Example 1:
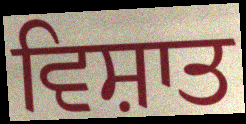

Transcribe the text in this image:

ਵਿਸ਼ਾਤ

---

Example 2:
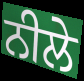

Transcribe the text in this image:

ਨੀਲੇ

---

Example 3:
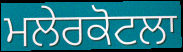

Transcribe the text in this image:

ਮਲੇਰਕੋਟਲਾ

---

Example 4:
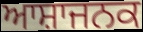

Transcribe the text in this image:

ਆਸ਼ਾਜਨਕ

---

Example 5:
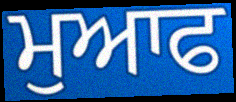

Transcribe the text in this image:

ਮੁਆਫ